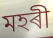
মহৰী